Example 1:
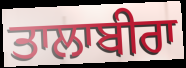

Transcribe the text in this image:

ਤਾਲਾਬੀਰਾ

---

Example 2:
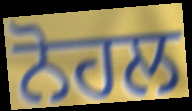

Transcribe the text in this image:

ਨੋਹਲ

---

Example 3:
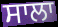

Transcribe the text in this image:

ਸਾਲਾ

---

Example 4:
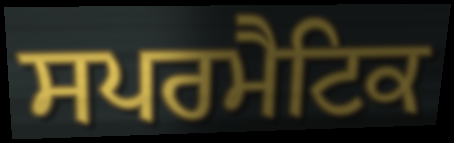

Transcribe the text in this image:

ਸਪਰਮੈਟਿਕ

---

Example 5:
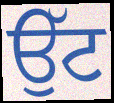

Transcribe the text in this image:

ਉੱਟ